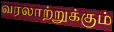
வரலாற்றுக்கும்